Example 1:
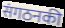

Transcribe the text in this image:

संगठनकी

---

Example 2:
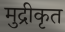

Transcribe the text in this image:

मुद्रीकृत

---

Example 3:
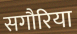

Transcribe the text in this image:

सगौरिया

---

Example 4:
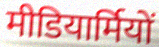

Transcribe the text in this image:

मीडियार्मियों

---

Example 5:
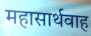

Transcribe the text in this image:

महासार्थवाह